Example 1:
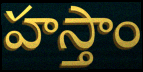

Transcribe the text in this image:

హస్తాం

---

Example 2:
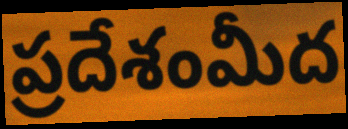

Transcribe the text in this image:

ప్రదేశంమీద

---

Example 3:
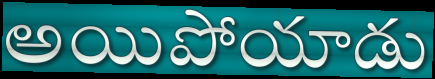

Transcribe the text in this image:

అయిపోయాడు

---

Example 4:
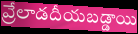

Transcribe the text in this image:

వ్రేలాడదీయబడ్డాయి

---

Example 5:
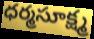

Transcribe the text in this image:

ధర్మసూక్ష్మ